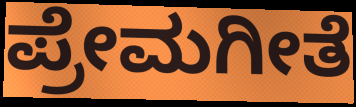
ಪ್ರೇಮಗೀತೆ